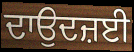
ਦਾਉਦਜ਼ਈ